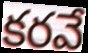
కరవే